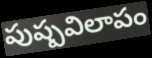
పుష్పవిలాపం